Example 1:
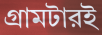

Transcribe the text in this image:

গ্রামটারই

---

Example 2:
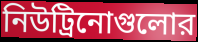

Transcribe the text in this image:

নিউট্রিনোগুলোর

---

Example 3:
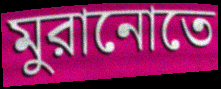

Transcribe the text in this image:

মুরানোতে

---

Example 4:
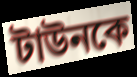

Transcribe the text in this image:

টাউনকে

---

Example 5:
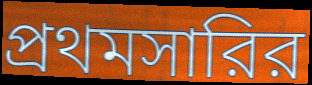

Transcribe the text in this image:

প্রথমসারির